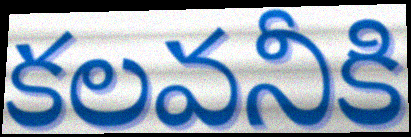
కలవనీకి